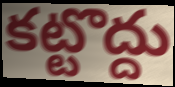
కట్టొద్దు